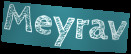
Meyrav